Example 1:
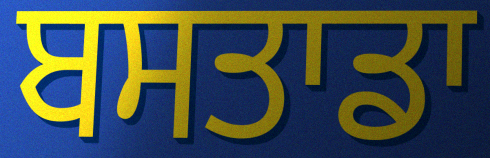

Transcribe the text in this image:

ਬਸਤਾਡਾ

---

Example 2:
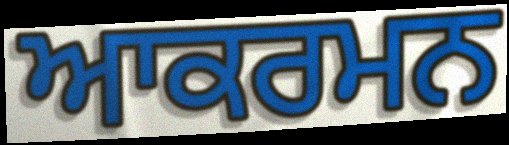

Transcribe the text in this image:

ਆਕਰਮਨ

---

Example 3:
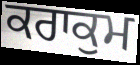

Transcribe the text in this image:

ਕਰਾਕੁਮ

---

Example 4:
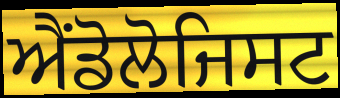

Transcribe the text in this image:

ਐਂਡੋਲੋਜਿਸਟ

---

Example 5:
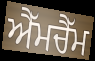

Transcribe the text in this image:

ਐੱਮਚੈੱਮ